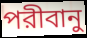
পরীবানু